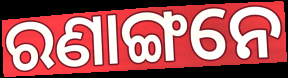
ରଣାଙ୍ଗନେ